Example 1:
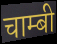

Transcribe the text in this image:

चाम्बी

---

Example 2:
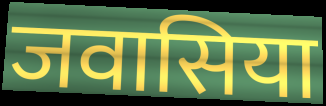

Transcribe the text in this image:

जवासिया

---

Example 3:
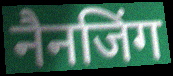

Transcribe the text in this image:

नैनजिंग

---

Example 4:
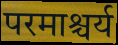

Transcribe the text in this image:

परमाश्चर्य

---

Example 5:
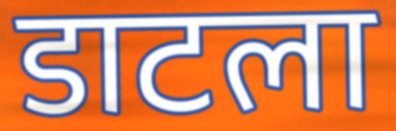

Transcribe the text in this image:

डाटला